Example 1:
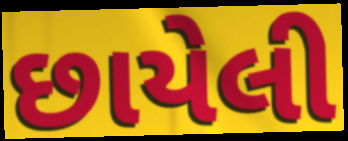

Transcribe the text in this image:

છાયેલી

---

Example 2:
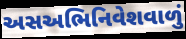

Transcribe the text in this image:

અસઅભિનિવેશવાળું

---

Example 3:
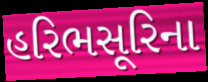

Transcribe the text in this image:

હરિભસૂરિના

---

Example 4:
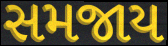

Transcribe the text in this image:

સમજાય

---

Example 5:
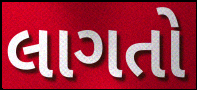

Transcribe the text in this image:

લાગતો